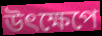
উৎক্ষেপে